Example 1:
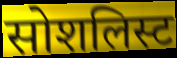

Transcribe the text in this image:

सोशलिस्‍ट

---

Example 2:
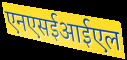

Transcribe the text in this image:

एनएसईआईएल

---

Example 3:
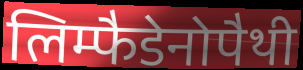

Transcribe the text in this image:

लिम्फैडेनोपैथी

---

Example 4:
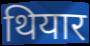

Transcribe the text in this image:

थियार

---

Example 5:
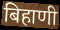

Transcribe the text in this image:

बिहाणी